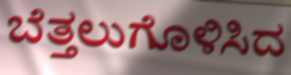
ಬೆತ್ತಲುಗೊಳಿಸಿದ